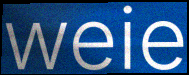
weie